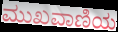
ಮುಖವಾಣಿಯ